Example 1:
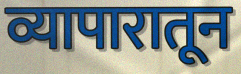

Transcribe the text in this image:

व्यापारातून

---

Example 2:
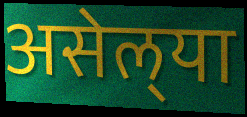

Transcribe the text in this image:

असेल्या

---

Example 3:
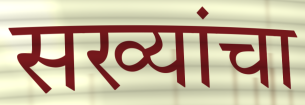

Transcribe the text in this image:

सख्यांचा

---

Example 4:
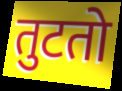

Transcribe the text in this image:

तुटतो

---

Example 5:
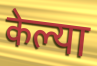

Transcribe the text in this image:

केल्या